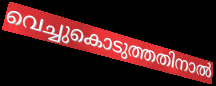
വെച്ചുകൊടുത്തതിനാൽ